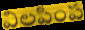
విలపింప